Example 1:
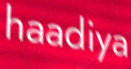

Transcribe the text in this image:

haadiya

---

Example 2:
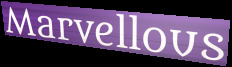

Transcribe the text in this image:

Marvellous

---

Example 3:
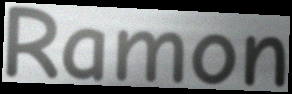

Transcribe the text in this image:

Ramon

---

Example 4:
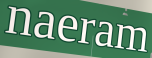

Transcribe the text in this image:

naeram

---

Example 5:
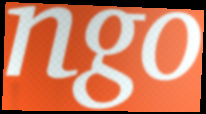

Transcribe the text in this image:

ngo